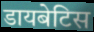
डायबेटिस